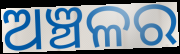
ଅଞ୍ଚଳର